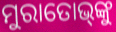
ମୁରାତୋଭ୍‌ଙ୍କୁ